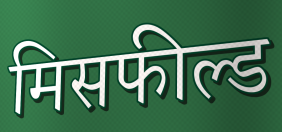
मिसफील्ड